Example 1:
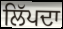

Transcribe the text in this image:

ਲਿੱਪਦਾ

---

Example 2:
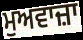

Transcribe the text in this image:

ਮੁਅਵਾਜ਼ਾ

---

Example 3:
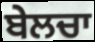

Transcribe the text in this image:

ਬੇਲਚਾ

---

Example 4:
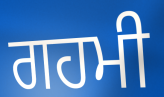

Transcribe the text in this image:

ਗਹਮੀ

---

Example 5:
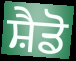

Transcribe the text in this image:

ਸ਼ੈਡੋ